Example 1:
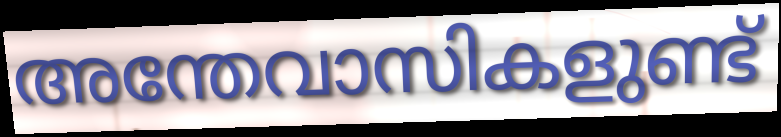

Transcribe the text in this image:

അന്തേവാസികളുണ്ട്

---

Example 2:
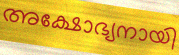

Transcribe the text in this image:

അക്ഷോഭ്യനായി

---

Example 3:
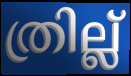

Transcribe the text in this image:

ത്രില്ല്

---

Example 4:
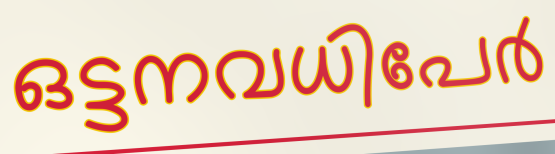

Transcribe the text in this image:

ഒട്ടനവധിപേർ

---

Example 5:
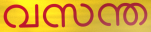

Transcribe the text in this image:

വസന്ത